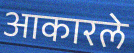
आकारले